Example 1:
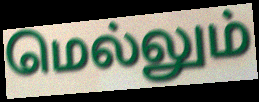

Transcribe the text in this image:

மெல்லும்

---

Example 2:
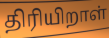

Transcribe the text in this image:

திரியிறாள்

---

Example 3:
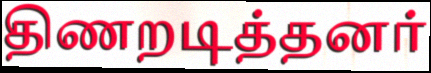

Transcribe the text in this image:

திணறடித்தனர்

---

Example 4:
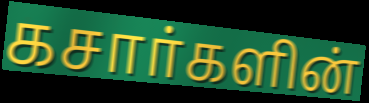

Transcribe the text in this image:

கசார்களின்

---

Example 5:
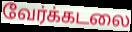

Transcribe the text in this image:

வேர்க்கடலை